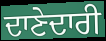
ਦਾਣੇਦਾਰੀ